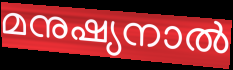
മനുഷ്യനാൽ